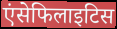
एंसेफिलाइटिस